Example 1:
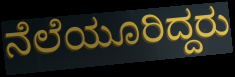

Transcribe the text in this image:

ನೆಲೆಯೂರಿದ್ದರು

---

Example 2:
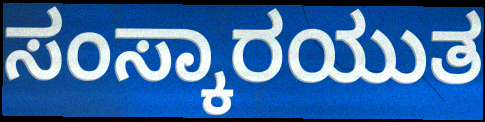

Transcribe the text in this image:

ಸಂಸ್ಕಾರಯುತ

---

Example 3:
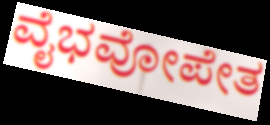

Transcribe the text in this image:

ವೈಭವೋಪೇತ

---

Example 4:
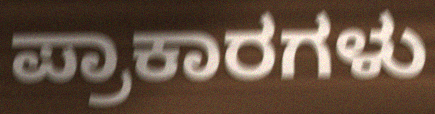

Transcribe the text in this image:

ಪ್ರಾಕಾರಗಳು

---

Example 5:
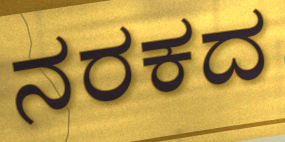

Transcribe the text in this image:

ನರಕದ